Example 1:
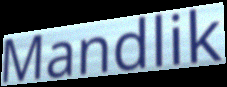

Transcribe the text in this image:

Mandlik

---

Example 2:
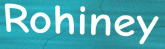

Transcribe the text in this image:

Rohiney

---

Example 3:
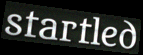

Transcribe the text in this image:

startled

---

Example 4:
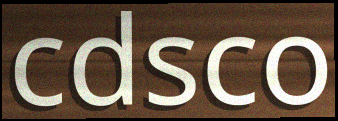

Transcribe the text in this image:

cdsco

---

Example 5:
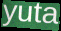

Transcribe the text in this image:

yuta